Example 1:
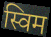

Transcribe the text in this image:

स्विम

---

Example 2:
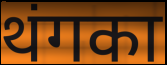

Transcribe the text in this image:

थंगका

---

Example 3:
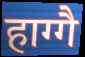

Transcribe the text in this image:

हाग्गै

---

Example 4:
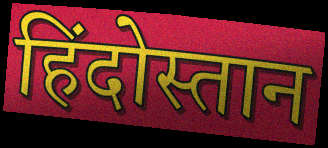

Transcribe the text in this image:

हिंदोस्तान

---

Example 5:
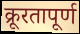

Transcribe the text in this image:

क्रूरतापूर्ण